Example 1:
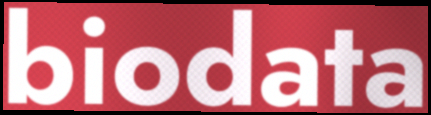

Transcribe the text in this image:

biodata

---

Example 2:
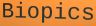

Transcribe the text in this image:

Biopics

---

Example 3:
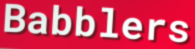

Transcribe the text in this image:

Babblers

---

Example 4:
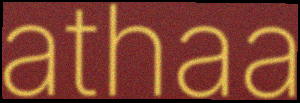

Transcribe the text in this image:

athaa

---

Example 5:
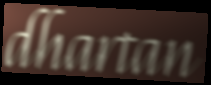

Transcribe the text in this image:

dhartan